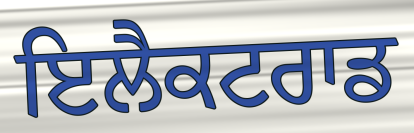
ਇਲੈਕਟਰਾਡ